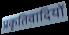
प्रकृतिवादियों